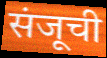
संजूची